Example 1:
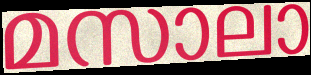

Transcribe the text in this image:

മസാലാ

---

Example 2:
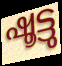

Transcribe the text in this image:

ഷൂട്ടു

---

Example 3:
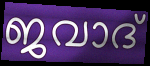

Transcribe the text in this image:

ജവാദ്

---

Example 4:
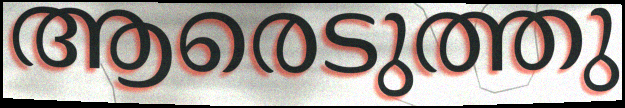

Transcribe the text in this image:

ആരെടുത്തു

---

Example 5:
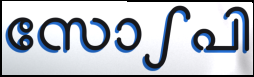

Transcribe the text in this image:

സോഽപി